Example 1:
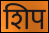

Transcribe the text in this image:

शिप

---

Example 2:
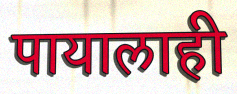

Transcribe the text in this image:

पायालाही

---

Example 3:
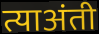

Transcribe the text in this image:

त्याअंती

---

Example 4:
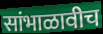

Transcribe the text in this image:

सांभाळावीच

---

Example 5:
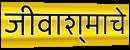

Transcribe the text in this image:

जीवाश्माचे